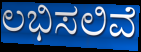
ಲಭಿಸಲಿವೆ